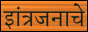
इांत्रजनाचे